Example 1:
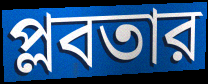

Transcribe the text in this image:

প্লবতার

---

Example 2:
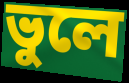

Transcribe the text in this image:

ভুলে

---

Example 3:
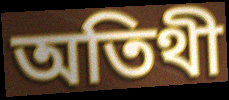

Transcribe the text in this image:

অতিথী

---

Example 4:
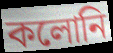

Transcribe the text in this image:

কলোনি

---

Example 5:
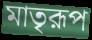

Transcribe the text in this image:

মাতৃরূপ